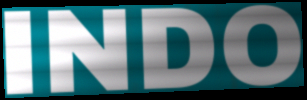
INDO